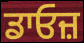
ਡਾਓਜ਼